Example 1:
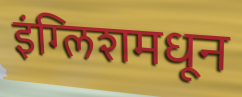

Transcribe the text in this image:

इंग्लिशमधून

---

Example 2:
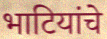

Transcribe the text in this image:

भाटियांचे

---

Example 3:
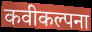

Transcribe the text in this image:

कवीकल्पना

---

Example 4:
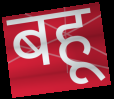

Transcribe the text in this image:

बहू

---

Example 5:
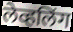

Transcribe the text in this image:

लेव्हलिंग